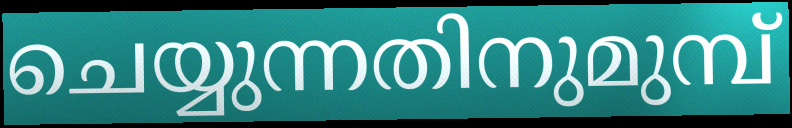
ചെയ്യുന്നതിനുമുമ്പ്